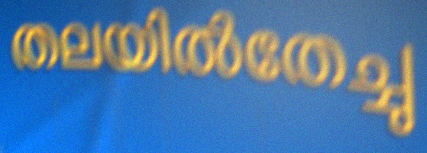
തലയിൽതേച്ചു